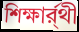
শিক্ষার্র্থী